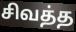
சிவத்த